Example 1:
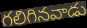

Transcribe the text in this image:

గలిగినవాడు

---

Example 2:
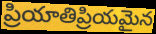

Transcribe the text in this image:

ప్రియాతిప్రియమైన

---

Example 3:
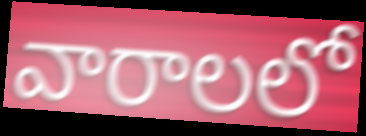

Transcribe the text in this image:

వారాలలో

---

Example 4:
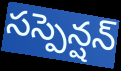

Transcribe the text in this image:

సస్పెన్షన్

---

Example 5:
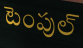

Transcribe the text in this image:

టెంపుల్